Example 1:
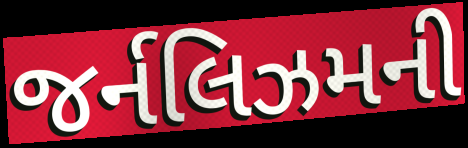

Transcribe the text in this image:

જર્નલિઝમની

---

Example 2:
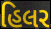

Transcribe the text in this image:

હિલર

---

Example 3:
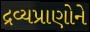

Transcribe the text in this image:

દ્રવ્યપ્રાણોને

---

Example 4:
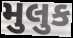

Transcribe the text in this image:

મુલુક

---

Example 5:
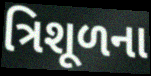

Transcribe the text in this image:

ત્રિશૂળના